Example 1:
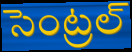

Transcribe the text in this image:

సెంట్రల్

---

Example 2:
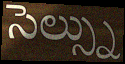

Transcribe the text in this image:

సెల్స్ను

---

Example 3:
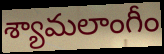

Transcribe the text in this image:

శ్యామలాంగీం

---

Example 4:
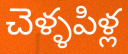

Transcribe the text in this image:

చెళ్ళపిళ్ల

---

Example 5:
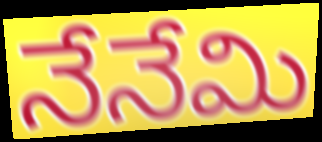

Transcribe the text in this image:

నేనేమి